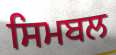
ਸਿਮਬਲ